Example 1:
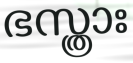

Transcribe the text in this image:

ഭസ്ത്രാഃ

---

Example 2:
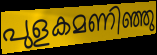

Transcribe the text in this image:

പുളകമണിഞ്ഞു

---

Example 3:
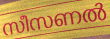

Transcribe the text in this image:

സീസണൽ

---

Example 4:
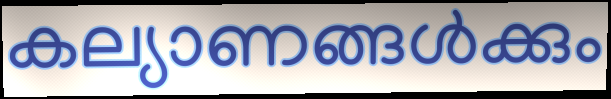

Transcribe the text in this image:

കല്യാണങ്ങൾക്കും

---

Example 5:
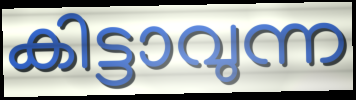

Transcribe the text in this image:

കിട്ടാവുന്ന